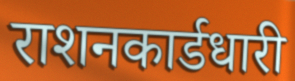
राशनकार्डधारी